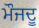
ਮੌਜਦੂ